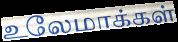
உலேமாக்கள்